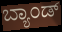
ಬ್ಯಾಂಡ್